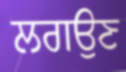
ਲਗਉਣ